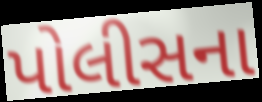
પોલીસના